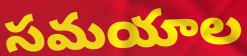
సమయాల